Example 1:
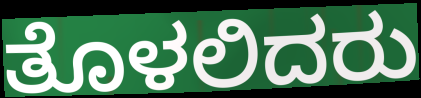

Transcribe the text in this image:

ತೊಳಲಿದರು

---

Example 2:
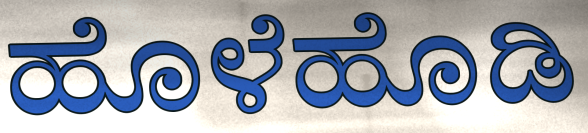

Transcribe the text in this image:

ಹೊಳೆಹೊಡಿ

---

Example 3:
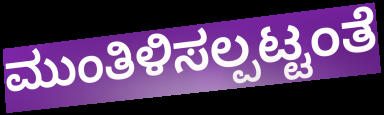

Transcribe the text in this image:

ಮುಂತಿಳಿಸಲ್ಪಟ್ಟಂತೆ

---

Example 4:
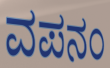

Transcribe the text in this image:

ವಪನಂ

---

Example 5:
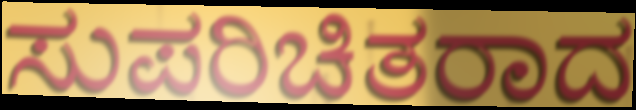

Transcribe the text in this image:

ಸುಪರಿಚಿತರಾದ